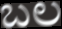
ಬಲ